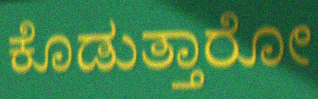
ಕೊಡುತ್ತಾರೋ